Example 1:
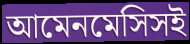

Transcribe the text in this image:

আমেনমেসিসই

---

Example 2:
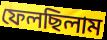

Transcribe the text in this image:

ফেলছিলাম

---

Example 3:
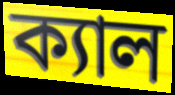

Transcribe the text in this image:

ক্যাল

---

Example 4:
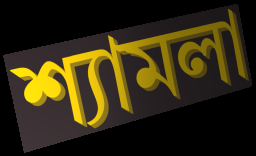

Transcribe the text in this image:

শ্যামলা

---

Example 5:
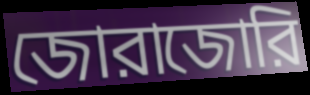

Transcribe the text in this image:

জোরাজোরি